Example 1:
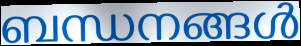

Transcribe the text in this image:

ബന്ധനങ്ങൾ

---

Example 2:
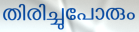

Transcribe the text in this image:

തിരിച്ചുപോരും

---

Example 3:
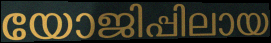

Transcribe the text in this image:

യോജിപ്പിലായ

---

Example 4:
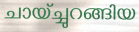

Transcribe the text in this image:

ചായ്ച്ചുറങ്ങിയ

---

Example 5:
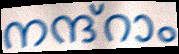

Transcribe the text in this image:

നന്ദ്റാം